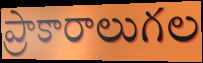
ప్రాకారాలుగల